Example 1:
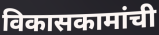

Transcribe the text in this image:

विकासकामांची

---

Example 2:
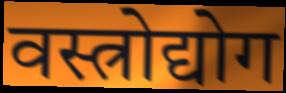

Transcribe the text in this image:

वस्त्रोद्योग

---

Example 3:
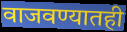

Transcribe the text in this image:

वाजवण्यातही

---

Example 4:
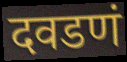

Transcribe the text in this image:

दवडणं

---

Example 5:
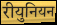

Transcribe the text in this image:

रीयुनियन